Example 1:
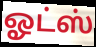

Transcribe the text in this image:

ஓட்ஸ்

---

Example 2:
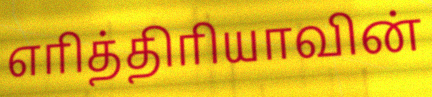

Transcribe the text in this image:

எரித்திரியாவின்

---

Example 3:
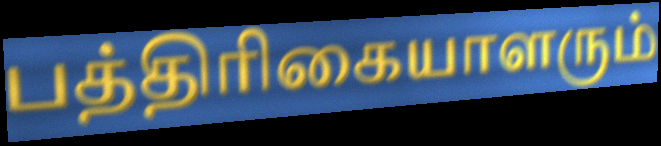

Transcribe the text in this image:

பத்திரிகையாளரும்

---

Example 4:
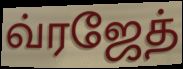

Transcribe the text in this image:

வ்ரஜேத்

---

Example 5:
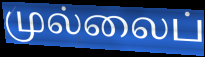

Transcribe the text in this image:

முல்லைப்